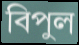
বিপুল